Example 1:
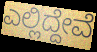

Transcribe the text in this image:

ಎಲ್ಲಿದ್ದೇವೆ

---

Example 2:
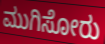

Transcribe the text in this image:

ಮುಗಿಸೋರು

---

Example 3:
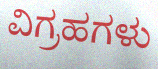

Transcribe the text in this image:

ವಿಗ್ರಹಗಳು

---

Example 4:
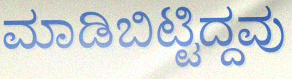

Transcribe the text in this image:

ಮಾಡಿಬಿಟ್ಟಿದ್ದವು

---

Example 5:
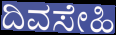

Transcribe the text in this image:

ದಿವಸೇಹಿ